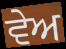
ਵੇਅ